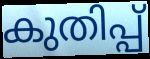
കുതിപ്പ്